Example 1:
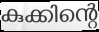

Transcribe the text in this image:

കുക്കിന്റെ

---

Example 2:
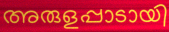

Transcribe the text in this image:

അരുളപ്പാടായി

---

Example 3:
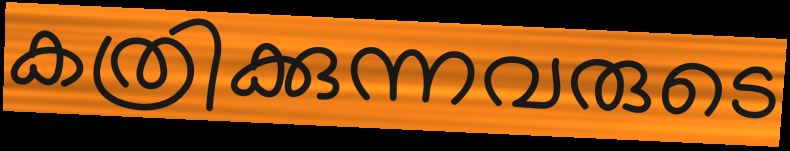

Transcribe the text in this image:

കത്രിക്കുന്നവരുടെ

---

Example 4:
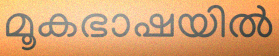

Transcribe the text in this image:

മൂകഭാഷയിൽ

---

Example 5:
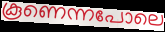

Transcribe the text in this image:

കൂണെന്നപോലെ